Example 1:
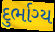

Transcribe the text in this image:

દુર્ભાગ્ય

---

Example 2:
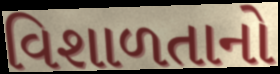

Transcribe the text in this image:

વિશાળતાનો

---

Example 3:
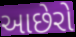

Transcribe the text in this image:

આછેરો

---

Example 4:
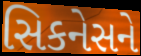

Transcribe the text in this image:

સિકનેસને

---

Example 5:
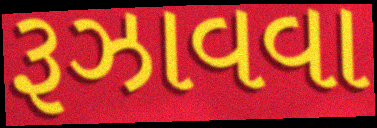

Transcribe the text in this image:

રૂઝાવવા